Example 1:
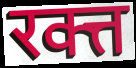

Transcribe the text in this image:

रक्त्त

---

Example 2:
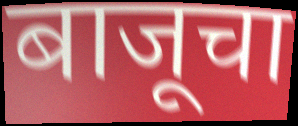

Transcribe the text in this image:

बाजूचा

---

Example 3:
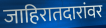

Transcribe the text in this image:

जाहिरातदारांवर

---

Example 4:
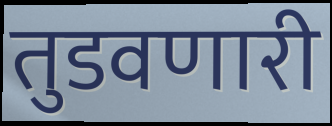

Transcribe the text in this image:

तुडवणारी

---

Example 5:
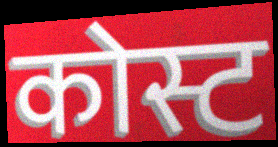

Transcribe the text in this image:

कोस्ट